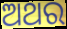
ଅଥର